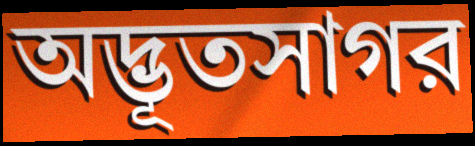
অদ্ভূতসাগর